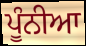
ਪੂੰਨੀਆ